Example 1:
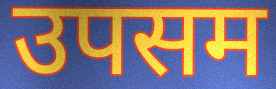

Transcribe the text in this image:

उपसम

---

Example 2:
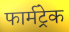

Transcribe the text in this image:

फार्मट्रेक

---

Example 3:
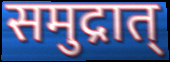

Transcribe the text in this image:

समुद्रात्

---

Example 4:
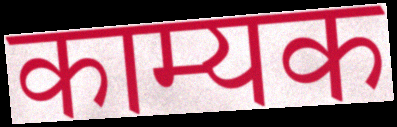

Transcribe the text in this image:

काम्यक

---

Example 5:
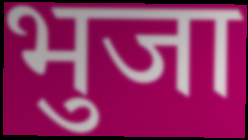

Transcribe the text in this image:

भुजा